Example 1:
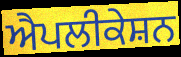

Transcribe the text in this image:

ਐਪਲੀਕੇਸ਼ਨ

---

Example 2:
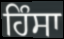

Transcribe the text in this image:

ਹਿੰਸਾ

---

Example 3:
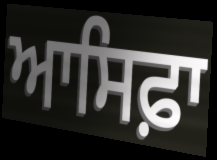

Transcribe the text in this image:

ਆਸਿਫ਼ਾ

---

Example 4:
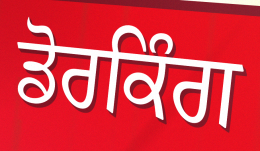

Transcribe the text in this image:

ਡੋਰਕਿੰਗ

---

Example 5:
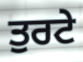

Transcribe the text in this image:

ਤੁਰਟੇ